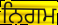
ਨਿਗਮ